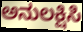
ಅನುಲಕ್ಷಿಸಿ